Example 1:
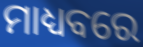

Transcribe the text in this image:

ମାଧ୍ୟବରେ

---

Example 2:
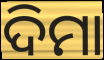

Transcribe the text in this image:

ଦିମା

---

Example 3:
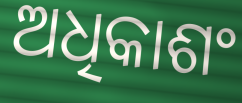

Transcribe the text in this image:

ଅଧିକାଶଂ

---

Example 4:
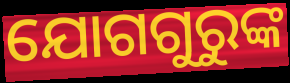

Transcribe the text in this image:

ଯୋଗଗୁରୁଙ୍କ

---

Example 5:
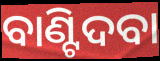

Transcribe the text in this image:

ବାଣ୍ଟିଦବା